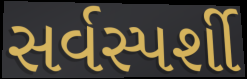
સર્વસ્પર્શી